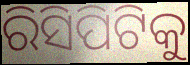
ରିସିପିଟିକୁ